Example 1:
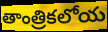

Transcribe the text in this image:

తాంత్రికలోయ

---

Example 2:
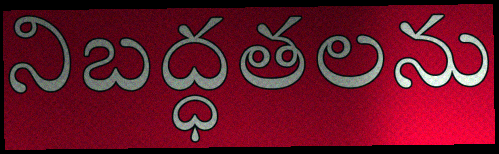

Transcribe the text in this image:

నిబద్ధతలను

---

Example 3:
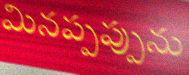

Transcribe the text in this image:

మినప్పప్పును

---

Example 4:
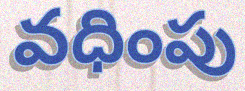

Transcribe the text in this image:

వధింపు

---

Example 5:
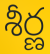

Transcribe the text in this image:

శీర్ణ